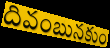
దివంబునకుం